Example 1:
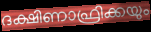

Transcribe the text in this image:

ദക്ഷിണാഫ്രിക്കയും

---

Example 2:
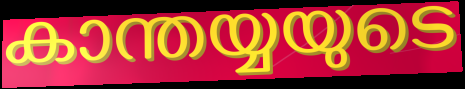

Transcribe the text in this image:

കാന്തയ്യയുടെ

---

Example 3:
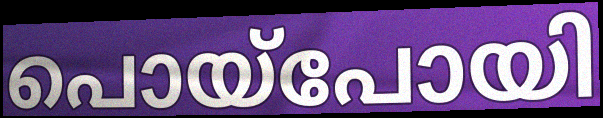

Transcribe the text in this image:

പൊയ്പോയി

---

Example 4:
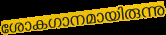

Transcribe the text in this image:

ശോകഗാനമായിരുന്നു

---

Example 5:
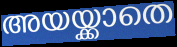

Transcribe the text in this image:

അയയ്ക്കാതെ